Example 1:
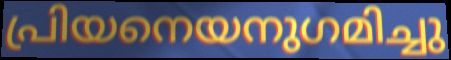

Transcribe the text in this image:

പ്രിയനെയനുഗമിച്ചു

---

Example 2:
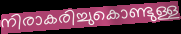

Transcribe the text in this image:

നിരാകരിച്ചുകൊണ്ടുള്ള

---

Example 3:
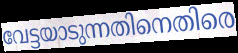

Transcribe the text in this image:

വേട്ടയാടുന്നതിനെതിരെ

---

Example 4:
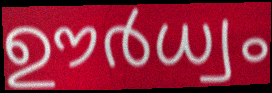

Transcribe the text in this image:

ഊർധ്വം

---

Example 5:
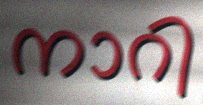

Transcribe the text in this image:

നാറി